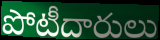
పోటీదారులు